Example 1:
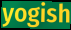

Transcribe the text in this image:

yogish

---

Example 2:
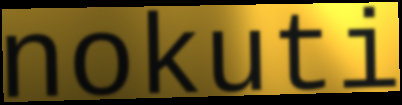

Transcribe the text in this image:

nokuti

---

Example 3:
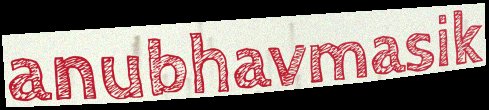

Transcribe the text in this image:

anubhavmasik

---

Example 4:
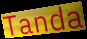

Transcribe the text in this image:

Tanda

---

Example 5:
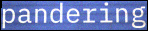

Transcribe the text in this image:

pandering